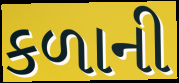
કળાની